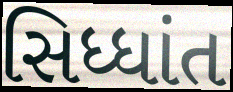
સિધ્ધાંત